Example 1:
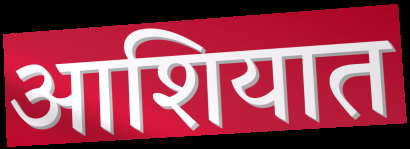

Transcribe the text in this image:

आशियात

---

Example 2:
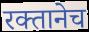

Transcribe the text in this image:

रक्तानेच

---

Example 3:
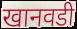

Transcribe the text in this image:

खानवडी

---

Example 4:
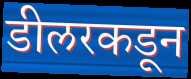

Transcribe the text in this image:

डीलरकडून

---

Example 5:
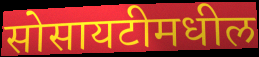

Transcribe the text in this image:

सोसायटीमधील